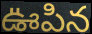
ఊపిన